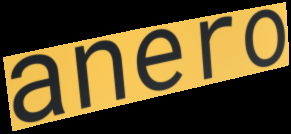
anero